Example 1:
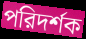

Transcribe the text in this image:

পরিদর্শক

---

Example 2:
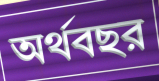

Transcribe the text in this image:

অর্থবছর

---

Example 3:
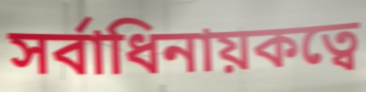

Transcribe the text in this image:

সর্বাধিনায়কত্বে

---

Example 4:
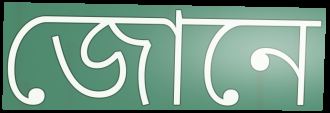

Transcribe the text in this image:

জোনে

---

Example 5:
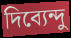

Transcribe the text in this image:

দিব্যেন্দু